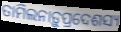
ତାମିଲନାଡ଼ୁପ୍ରଦେଶସ୍ୟ